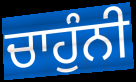
ਚਾਹੁੰਨੀ